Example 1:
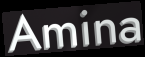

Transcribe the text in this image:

Amina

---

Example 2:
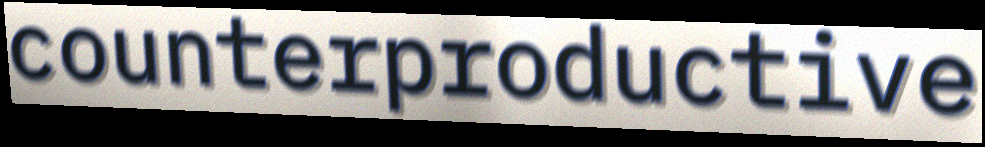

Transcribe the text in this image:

counterproductive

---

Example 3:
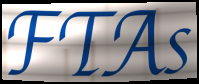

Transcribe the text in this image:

FTAs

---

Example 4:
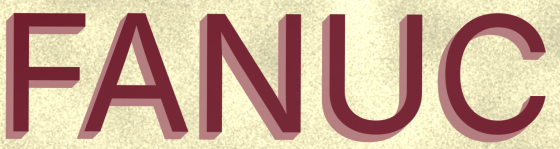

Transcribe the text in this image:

FANUC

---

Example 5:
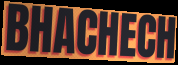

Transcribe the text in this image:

BHACHECH